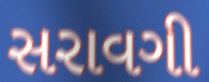
સરાવગી